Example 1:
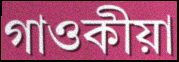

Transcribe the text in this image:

গাওকীয়া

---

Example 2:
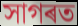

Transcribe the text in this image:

সাগৰত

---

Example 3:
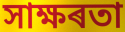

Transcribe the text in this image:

সাক্ষৰতা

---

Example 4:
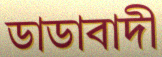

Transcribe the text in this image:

ডাডাবাদী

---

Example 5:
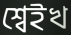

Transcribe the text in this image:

শ্বেইখ